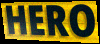
HERO